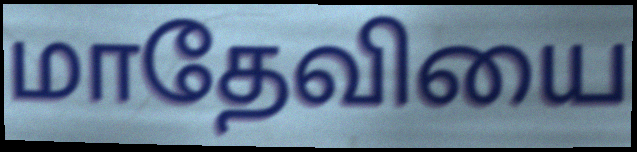
மாதேவியை